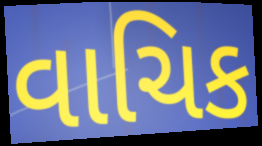
વાચિક